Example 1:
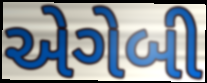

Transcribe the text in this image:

એગેબી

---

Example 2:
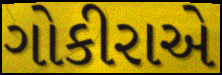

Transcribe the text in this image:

ગોકીરાએ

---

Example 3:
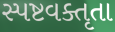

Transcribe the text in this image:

સ્પષ્ટવક્તૃતા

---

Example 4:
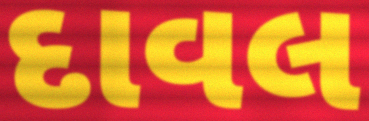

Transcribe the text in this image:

દાવલ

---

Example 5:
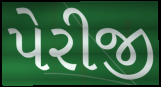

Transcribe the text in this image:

પેરીજી